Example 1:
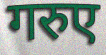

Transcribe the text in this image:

गरुए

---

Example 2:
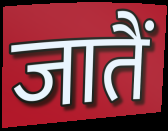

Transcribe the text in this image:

जातैं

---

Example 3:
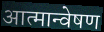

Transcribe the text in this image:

आत्मान्वेषण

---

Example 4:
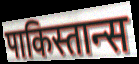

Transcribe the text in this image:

पाकिस्तान्स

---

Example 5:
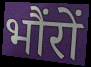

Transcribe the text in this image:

भौंरों